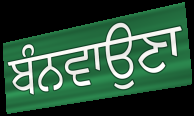
ਬੰਨਵਾਉਣਾ